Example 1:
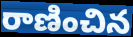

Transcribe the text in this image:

రాణించిన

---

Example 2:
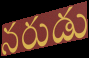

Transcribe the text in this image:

నరుడు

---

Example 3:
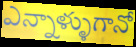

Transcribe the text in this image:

ఎన్నాళ్ళుగానో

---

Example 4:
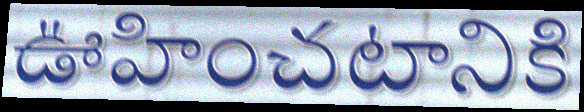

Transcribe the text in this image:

ఊహించటానికి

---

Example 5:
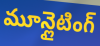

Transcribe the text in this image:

మూన్లైటింగ్